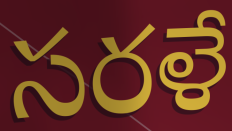
సరళే